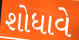
શોધાવે